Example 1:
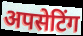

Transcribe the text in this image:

अपसेटिंग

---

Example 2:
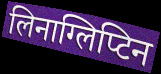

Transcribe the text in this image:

लिनाग्लिप्टिन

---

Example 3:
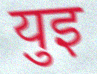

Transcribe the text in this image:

युइ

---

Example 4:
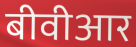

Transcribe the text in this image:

बीवीआर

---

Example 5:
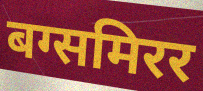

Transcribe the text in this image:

बग्समिरर